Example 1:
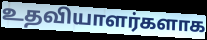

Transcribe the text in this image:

உதவியாளர்களாக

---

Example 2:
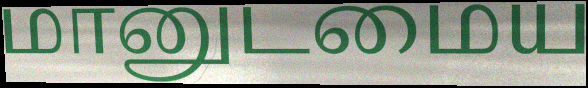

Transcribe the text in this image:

மானுடமைய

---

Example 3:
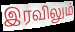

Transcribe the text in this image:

இரவிலும்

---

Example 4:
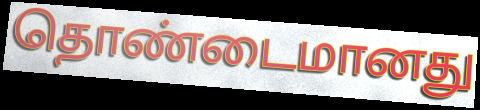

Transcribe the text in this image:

தொண்டைமானது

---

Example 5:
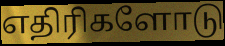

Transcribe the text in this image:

எதிரிகளோடு